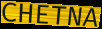
CHETNA